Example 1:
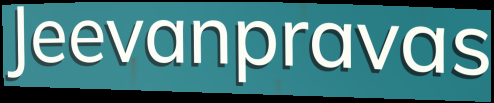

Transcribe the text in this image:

Jeevanpravas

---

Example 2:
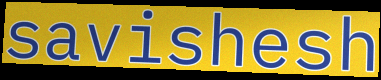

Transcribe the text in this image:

savishesh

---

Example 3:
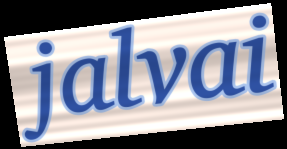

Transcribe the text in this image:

jalvai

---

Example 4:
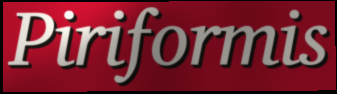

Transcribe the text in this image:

Piriformis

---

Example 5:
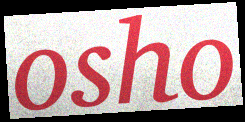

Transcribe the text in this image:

osho